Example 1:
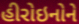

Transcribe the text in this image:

હીરોઇનોને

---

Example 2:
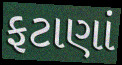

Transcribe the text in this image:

ફટાણાં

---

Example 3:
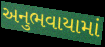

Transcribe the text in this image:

અનુભવાયામાં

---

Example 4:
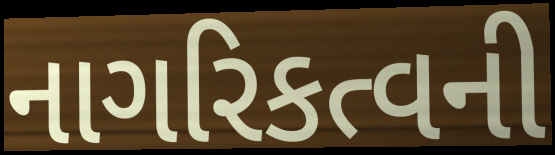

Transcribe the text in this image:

નાગરિકત્વની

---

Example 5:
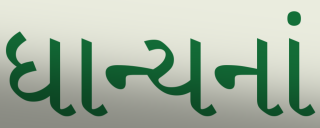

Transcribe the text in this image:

ધાન્યનાં